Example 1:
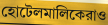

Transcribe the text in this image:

হোটেলমালিকেরাও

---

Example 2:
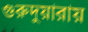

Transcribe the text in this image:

গুরুদুয়ারায়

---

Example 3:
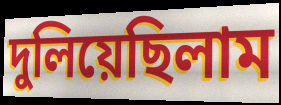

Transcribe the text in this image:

দুলিয়েছিলাম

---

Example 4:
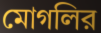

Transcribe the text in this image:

মোগলির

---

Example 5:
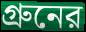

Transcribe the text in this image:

গ্রুনের